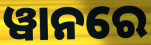
ୱାନରେ